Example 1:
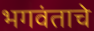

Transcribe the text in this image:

भगवंताचे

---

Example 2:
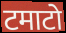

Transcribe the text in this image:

टमाटो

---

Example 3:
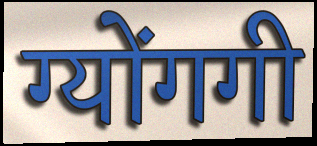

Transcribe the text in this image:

ग्योंगगी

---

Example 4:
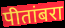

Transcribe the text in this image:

पीतांबरा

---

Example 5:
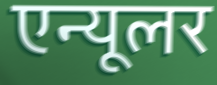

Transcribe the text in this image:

एन्यूलर